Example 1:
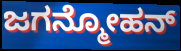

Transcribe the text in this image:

ಜಗನ್ಮೋಹನ್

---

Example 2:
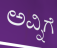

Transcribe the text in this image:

ಅವ್ನಿಗೆ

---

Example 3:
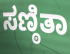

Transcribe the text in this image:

ಸಣ್ಠಿತಾ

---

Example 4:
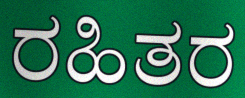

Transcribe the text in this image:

ರಹಿತರ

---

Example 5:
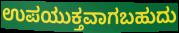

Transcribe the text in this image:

ಉಪಯುಕ್ತವಾಗಬಹುದು